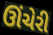
ઊંચેરી